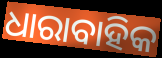
ଧାରାବାହିକ